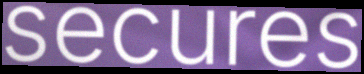
secures